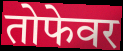
तोफेवर